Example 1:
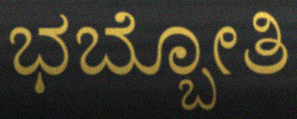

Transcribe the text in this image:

ಭಬ್ಬೋತಿ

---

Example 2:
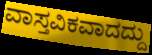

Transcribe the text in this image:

ವಾಸ್ತವಿಕವಾದದ್ದು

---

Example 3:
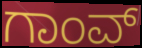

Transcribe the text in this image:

ಗಾಂವ್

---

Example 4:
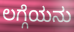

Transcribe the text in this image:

ಲಗ್ಗೆಯನು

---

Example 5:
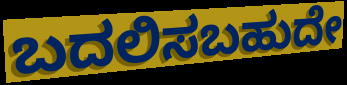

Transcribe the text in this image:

ಬದಲಿಸಬಹುದೇ